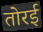
तोरई